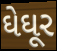
ઘેઘૂર